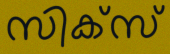
സിക്സ്